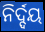
ନିର୍ଦ୍ଦୟ